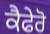
ਕੈਫੇਰੋ